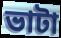
ভাটা